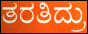
ತರತಿದ್ರು